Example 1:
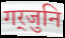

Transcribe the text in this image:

गर्जुनि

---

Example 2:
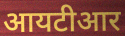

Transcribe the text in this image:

आयटीआर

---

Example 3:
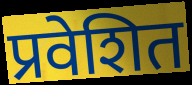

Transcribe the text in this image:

प्रवेशित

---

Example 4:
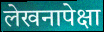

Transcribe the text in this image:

लेखनापेक्षा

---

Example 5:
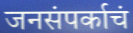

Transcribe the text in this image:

जनसंपर्काचं